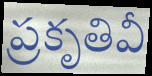
ప్రకృతివీ